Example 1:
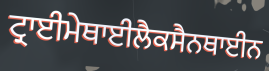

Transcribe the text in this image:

ਟ੍ਰਾਈਮੇਥਾਈਲੈਕਸੈਨਥਾਈਨ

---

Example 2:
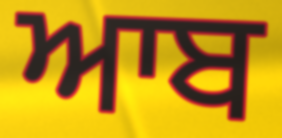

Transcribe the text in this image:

ਆਬ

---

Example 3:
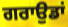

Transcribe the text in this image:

ਗਰਾਉਡਾਂ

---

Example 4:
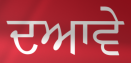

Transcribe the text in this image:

ਦਆਵੇ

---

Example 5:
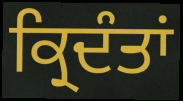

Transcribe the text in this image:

ਕ੍ਰਿਦੰਤਾਂ